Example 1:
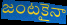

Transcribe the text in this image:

జంటకైనా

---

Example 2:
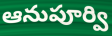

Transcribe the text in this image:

ఆనుపూర్వి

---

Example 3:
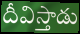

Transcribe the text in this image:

దీవిస్తాడు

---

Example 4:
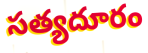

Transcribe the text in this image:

సత్యదూరం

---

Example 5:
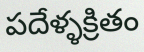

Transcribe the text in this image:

పదేళ్ళక్రితం